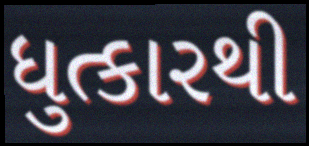
ધુત્કારથી